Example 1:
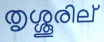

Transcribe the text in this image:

തൃശ്ശൂരില്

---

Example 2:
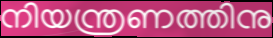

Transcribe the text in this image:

നിയന്ത്രണത്തിനു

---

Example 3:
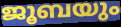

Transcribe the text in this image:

ജൂബയും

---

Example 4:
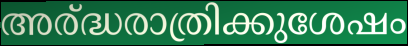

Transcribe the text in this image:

അര്ദ്ധരാത്രിക്കുശേഷം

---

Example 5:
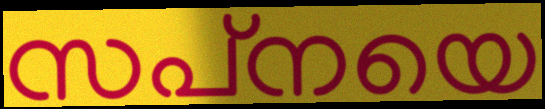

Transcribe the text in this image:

സപ്‌നയെ